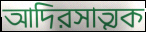
আদিরসাত্মক